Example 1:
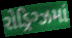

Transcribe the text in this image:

રોડ્રિગ્ઝમાં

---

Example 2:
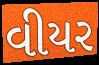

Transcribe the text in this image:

વીયર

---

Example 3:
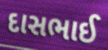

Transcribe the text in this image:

દાસભાઈ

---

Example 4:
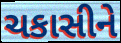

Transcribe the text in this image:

ચકાસીને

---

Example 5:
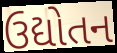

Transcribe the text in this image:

ઉદ્યોતન